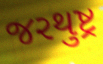
જરથુષ્ટ્ર